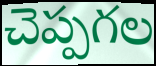
చెప్పగల